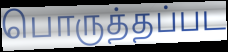
பொருத்தப்பட